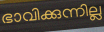
ഭാവിക്കുന്നില്ല